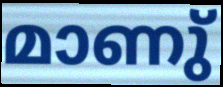
മാണു്